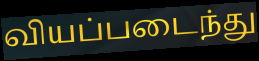
வியப்படைந்து